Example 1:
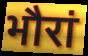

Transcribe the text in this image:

भौरां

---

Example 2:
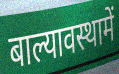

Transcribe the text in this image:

बाल्यावस्थामें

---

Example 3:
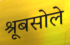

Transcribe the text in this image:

श्रूबसोले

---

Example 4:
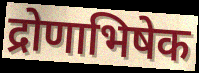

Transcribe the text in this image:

द्रोणाभिषेक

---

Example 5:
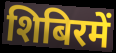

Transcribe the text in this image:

शिबिरमें